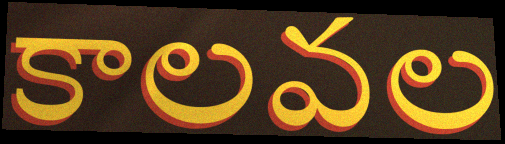
కాలవల